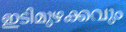
ഇടിമുഴക്കവും